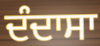
ਦੰਦਾਸਾ